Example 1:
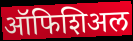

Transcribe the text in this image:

ऑफिशिअल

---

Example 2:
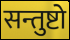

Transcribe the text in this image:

सन्तुष्टो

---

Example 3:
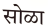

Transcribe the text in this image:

सोळा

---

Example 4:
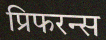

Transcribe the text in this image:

प्रिफरन्स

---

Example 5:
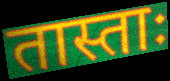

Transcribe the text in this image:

तास्ताः